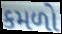
કમળો